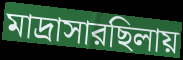
মাদ্রাসারছিলায়